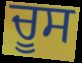
ਚੂਸ